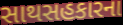
સાથસહકારના